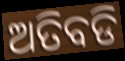
ଅତିବଡି